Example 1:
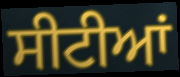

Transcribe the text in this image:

ਸੀਟੀਆਂ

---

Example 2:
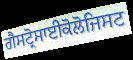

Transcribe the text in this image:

ਗੈਸਟ੍ਰੋਸਾਈਕੋਲੋਜਿਸਟ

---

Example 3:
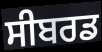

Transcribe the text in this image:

ਸੀਬਰਡ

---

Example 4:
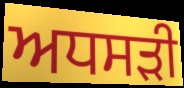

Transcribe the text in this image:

ਅਧਸੜੀ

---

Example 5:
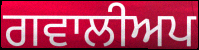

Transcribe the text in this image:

ਗਵਾਲੀਅਪ